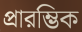
প্রারম্ভিক